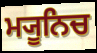
ਮ੍ਯੂਨਿਚ